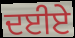
ਦਈਏ